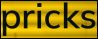
pricks